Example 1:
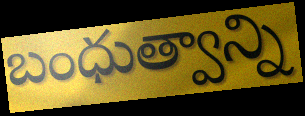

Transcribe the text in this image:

బంధుత్వాన్ని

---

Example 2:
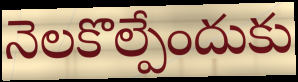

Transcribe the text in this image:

నెలకొల్పేందుకు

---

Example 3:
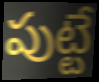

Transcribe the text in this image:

పుట్టే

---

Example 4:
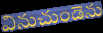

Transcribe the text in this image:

వినుచుండెను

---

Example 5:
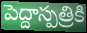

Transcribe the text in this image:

పెద్దాస్పత్రికి